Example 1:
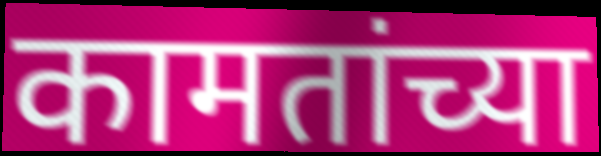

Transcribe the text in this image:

कामतांच्या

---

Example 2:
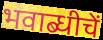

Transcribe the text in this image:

भवाब्धीचें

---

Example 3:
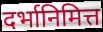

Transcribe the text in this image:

दर्भानिमित्त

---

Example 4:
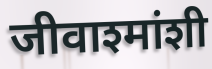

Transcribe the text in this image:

जीवाश्मांशी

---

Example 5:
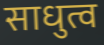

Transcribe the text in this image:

साधुत्व